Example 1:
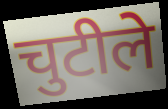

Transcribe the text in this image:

चुटीले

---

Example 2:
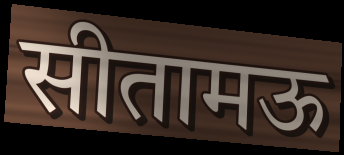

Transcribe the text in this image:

सीतामऊ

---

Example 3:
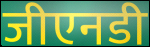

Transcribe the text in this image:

जीएनडी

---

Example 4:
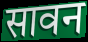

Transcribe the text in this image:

सावन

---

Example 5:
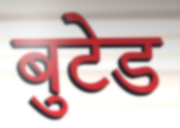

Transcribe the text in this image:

बुटेड